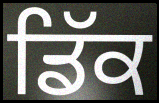
ਡਿੱਕ